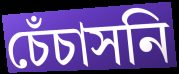
চেঁচাসনি